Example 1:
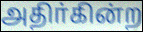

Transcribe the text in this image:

அதிர்கின்ற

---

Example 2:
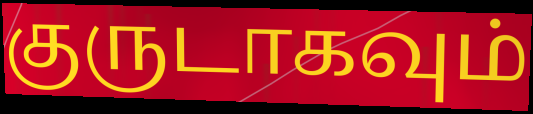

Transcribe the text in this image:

குருடாகவும்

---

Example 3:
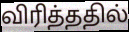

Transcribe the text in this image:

விரித்ததில்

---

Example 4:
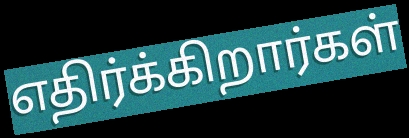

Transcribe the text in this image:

எதிர்க்கிறார்கள்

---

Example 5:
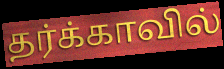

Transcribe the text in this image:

தர்க்காவில்